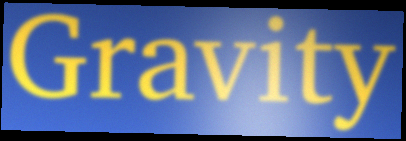
Gravity